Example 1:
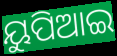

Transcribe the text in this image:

ୟୁପିଆଇ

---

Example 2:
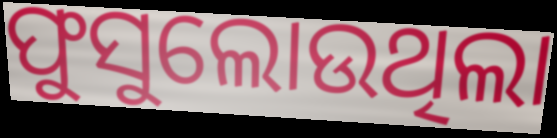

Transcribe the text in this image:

ଫୁସୁଲୋଉଥିଲା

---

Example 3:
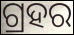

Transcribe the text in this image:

ଗ୍ରହର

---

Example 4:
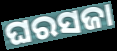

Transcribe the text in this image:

ଘରସଜା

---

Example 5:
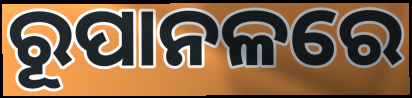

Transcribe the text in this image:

ରୂପାନଳରେ